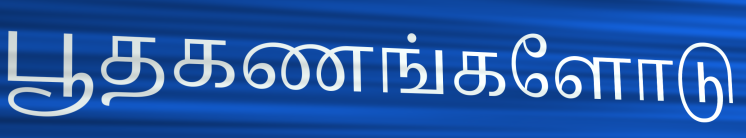
பூதகணங்களோடு